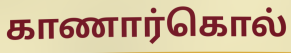
காணார்கொல்